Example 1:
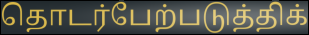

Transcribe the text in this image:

தொடர்பேற்படுத்திக்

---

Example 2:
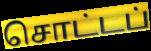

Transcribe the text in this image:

சொட்டப்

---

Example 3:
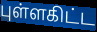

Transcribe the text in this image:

புள்ளகிட்ட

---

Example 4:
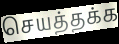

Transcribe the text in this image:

செயத்தக்க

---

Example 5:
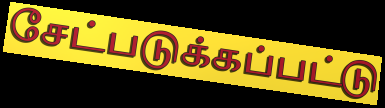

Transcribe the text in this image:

சேட்படுக்கப்பட்டு